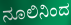
ನೂಲಿನಿಂದ